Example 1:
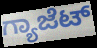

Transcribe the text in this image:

ಗ್ಯಾಜೆಟ್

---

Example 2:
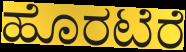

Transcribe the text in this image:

ಹೊರಟೆರೆ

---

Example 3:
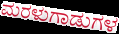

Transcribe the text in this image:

ಮರಳುಗಾಡುಗಳ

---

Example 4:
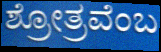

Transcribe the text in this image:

ಶ್ರೋತ್ರವೆಂಬ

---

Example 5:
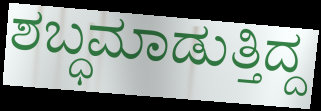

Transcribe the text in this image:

ಶಬ್ಧಮಾಡುತ್ತಿದ್ದ